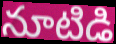
నూటిడి